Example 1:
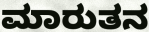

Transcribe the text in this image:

ಮಾರುತನ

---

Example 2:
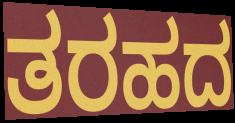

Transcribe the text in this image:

ತರಹದ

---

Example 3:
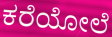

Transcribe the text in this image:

ಕರೆಯೋಲೆ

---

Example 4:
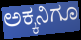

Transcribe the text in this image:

ಅಕ್ಕನಿಗೂ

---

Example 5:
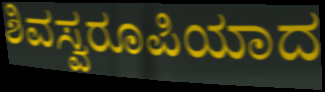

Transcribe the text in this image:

ಶಿವಸ್ವರೂಪಿಯಾದ